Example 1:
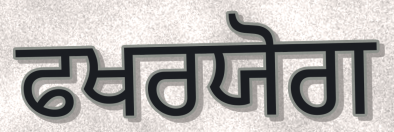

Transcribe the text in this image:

ਫਖਰਯੋਗ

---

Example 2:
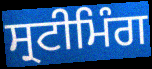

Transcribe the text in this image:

ਸ੍ਰਟੀਮਿੰਗ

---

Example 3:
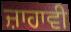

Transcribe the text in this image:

ਜ਼ਾਹਾਵੀ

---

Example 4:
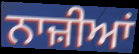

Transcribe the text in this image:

ਨਾਜ਼ੀਆਂ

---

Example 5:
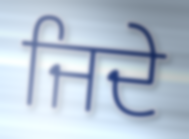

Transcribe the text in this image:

ਜਿਦੇ